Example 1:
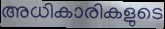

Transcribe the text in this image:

അധികാരികളുടെ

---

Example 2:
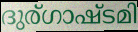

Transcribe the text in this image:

ദുര്ഗാഷ്ടമി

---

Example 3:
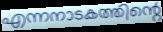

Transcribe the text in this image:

എന്നനാടകത്തിന്റെ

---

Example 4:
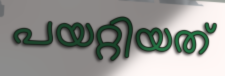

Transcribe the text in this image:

പയറ്റിയത്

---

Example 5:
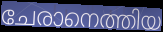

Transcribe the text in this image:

ചേരാനെത്തിയ